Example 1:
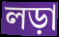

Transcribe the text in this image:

লড়া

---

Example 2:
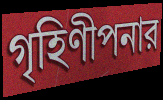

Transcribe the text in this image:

গৃহিণীপনার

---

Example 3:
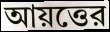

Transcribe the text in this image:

আয়ত্তের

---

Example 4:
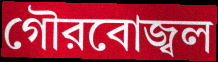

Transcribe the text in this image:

গৌরবোজ্বল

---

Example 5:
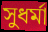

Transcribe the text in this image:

সুধর্মা